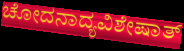
ಚೋದನಾದ್ಯವಿಶೇಷಾತ್